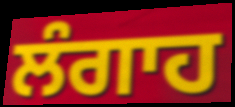
ਲੰਗਾਹ